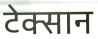
टेक्सान